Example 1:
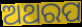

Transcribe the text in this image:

ଅଥରପ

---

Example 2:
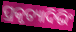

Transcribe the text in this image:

ପ୍ରକୃତ୍ୟାଦିଭିଂ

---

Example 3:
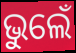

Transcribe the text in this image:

ଭୁଲେଁ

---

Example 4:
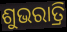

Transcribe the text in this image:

ଶୁଭରାତ୍ରି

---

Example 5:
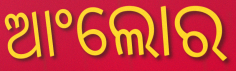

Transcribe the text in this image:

ଆଂଲୋର